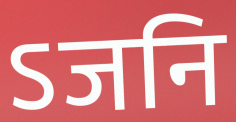
ऽजनि